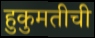
हुकुमतीची